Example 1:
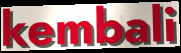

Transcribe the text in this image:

kembali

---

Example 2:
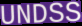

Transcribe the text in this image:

UNDSS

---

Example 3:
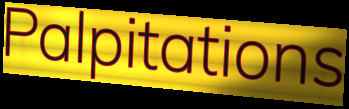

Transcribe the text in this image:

Palpitations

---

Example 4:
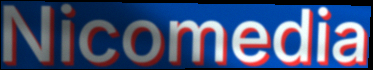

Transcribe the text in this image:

Nicomedia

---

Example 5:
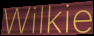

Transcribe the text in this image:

Wilkie